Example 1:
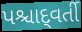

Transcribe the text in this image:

પશ્ચાદ્‌વર્તી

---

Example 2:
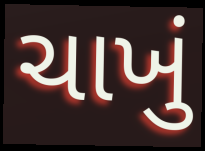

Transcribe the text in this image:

ચાખું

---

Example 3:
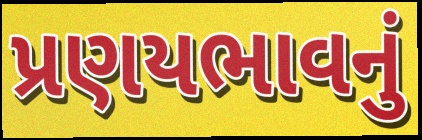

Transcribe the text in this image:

પ્રણયભાવનું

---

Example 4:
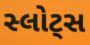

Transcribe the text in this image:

સ્લોટ્સ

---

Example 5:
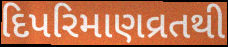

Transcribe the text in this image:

દિપરિમાણવ્રતથી